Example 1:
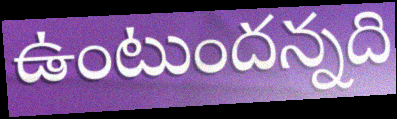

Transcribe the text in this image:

ఉంటుందన్నది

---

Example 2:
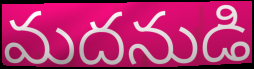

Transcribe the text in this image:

మదనుడి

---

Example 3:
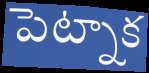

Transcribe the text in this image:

పెట్నాక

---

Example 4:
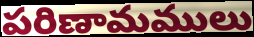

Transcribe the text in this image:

పరిణామములు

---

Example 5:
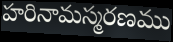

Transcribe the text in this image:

హరినామస్మరణము